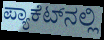
ಪ್ಯಾಕೆಟ್‌ನಲ್ಲಿ